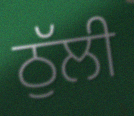
ਠੁੱਲੀ